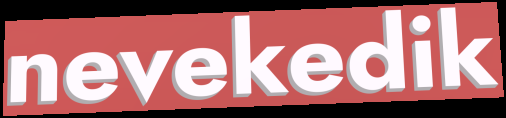
nevekedik